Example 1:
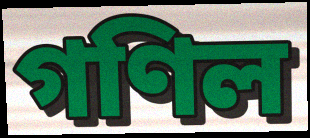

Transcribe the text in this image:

গণিল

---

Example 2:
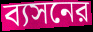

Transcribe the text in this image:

ব্যসনের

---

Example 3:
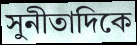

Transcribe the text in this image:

সুনীতাদিকে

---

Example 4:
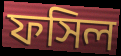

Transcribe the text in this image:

ফসিল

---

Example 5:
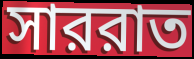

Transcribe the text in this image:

সাররাত